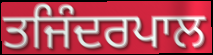
ਤਜਿੰਦਰਪਾਲ